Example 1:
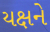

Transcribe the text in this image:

યક્ષને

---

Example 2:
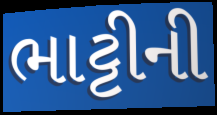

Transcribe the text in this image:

ભાટ્ટીની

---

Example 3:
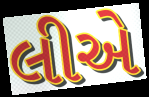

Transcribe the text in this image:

લીએ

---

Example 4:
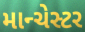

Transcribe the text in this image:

માન્ચેસ્ટર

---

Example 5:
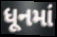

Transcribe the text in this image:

ધૂનમાં